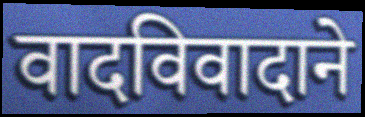
वादविवादाने